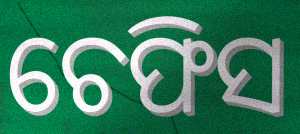
ଚେଫିସ